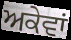
ਅਕੇਵਾਂ